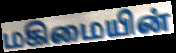
மகிமையின்